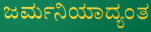
ಜರ್ಮನಿಯಾದ್ಯಂತ